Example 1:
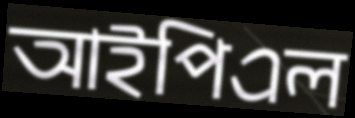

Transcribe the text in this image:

আইপিএল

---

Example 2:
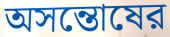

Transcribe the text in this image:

অসন্তোষের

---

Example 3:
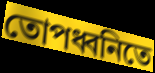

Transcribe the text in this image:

তোপধ্বনিতে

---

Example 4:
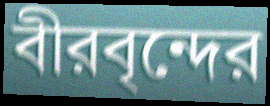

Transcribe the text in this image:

বীরবৃন্দের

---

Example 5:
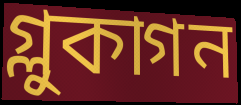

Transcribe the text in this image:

গ্লুকাগন